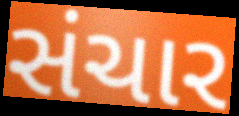
સંચાર